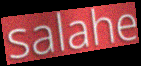
salahe